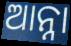
ଆନ୍ନା